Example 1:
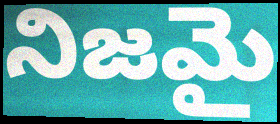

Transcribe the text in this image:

నిజమై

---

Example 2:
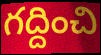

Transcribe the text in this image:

గద్దించి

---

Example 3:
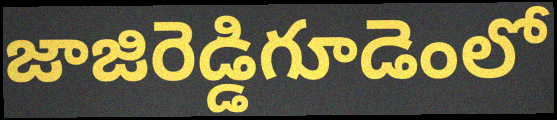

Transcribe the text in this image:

జాజిరెడ్డిగూడెంలో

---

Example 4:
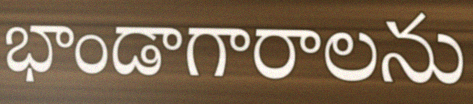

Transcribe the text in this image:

భాండాగారాలను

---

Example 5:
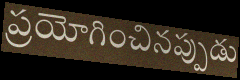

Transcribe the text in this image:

ప్రయోగించినప్పుడు